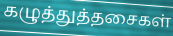
கழுத்துத்தசைகள்